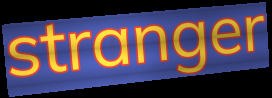
stranger